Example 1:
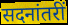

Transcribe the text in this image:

सदनांतरीं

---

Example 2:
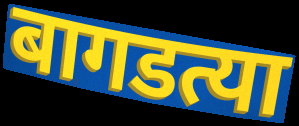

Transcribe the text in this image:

बागडत्या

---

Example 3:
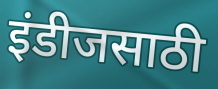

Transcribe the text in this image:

इंडीजसाठी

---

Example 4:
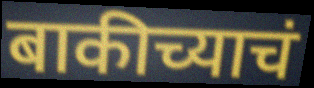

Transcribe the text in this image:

बाकीच्याचं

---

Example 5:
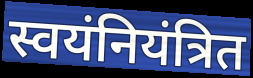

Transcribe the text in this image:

स्वयंनियंत्रित